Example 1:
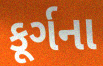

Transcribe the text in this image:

કૂર્ગના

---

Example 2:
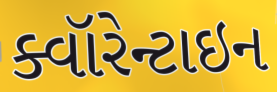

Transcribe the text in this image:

ક્વૉરેન્ટાઇન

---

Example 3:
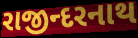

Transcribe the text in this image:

રાજીન્દરનાથ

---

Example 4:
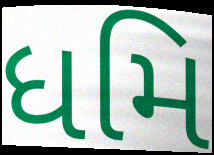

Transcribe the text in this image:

ધમિ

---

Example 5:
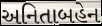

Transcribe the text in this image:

અનિતાબહેન